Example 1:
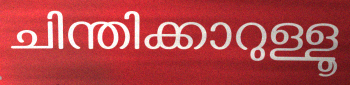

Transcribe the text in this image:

ചിന്തിക്കാറുള്ളൂ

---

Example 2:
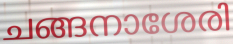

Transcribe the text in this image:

ചങ്ങനാശേരി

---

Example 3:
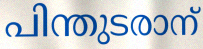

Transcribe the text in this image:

പിന്തുടരാന്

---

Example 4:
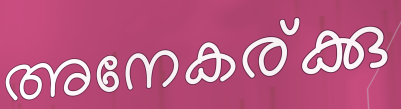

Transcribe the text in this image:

അനേകര്ക്കു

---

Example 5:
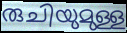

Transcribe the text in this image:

രുചിയുമുള്ള